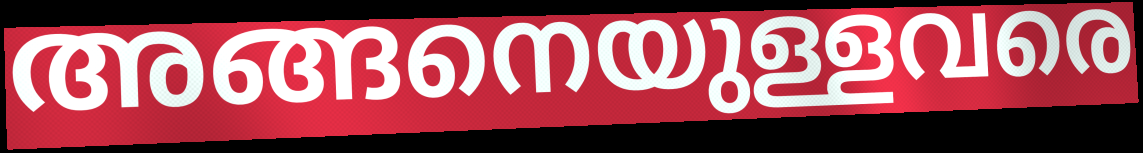
അങ്ങനെയുള്ളവരെ